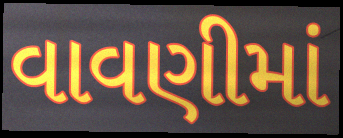
વાવણીમાં